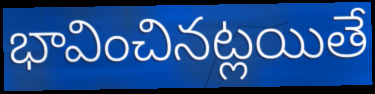
భావించినట్లయితే